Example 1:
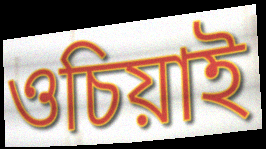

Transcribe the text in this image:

ওচিয়াই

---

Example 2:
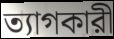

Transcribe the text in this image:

ত্যাগকারী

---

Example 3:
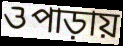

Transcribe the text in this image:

ওপাড়ায়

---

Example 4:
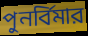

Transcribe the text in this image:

পুনর্বিমার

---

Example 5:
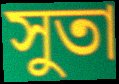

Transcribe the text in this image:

সুতা